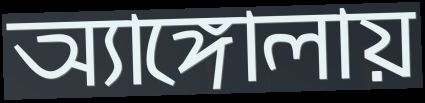
অ্যাঙ্গোলায়